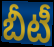
బీటీ